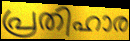
പ്രതിഹാര